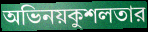
অভিনয়কুশলতার